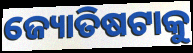
ଜ୍ୟୋତିଷଟାକୁ